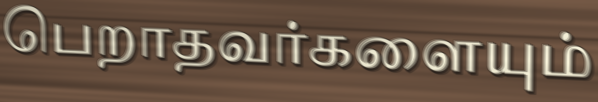
பெறாதவர்களையும்